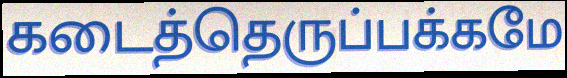
கடைத்தெருப்பக்கமே